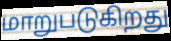
மாறுபடுகிறது